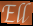
Ell